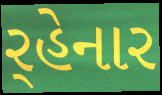
ર્‌હેનાર